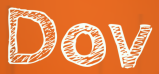
Dov